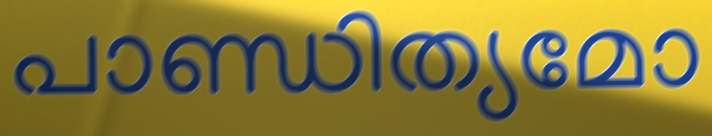
പാണ്ഡിത്യമോ